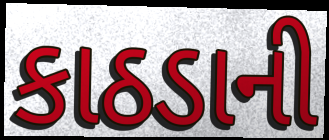
કાઠડાની